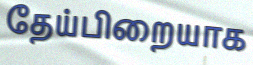
தேய்பிறையாக